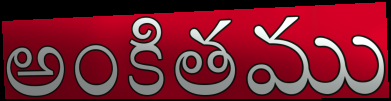
అంకితము